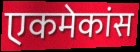
एकमेकांस